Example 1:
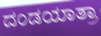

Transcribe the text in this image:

ದಂಡಯಾತ್ರಾ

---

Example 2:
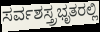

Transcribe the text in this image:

ಸರ್ವಶಸ್ತ್ರಭೃತರಲ್ಲಿ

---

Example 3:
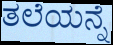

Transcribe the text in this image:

ತಲೆಯನ್ನೆ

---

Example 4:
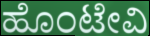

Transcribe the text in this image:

ಹೊಂಟೇವಿ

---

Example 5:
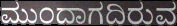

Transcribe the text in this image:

ಮುಂದಾಗದಿರುವ